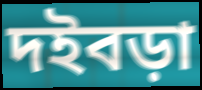
দইবড়া